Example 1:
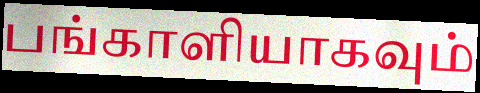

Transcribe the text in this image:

பங்காளியாகவும்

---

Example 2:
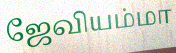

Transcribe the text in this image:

ஜேவியம்மா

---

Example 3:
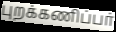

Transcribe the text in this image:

புறக்கணிப்பர்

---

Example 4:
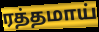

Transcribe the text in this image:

ரத்தமாய்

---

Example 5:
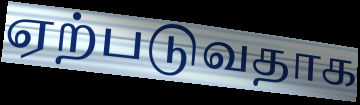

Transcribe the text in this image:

ஏற்படுவதாக